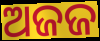
ଅଜଜ